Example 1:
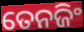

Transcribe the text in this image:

ତେନଜିଂ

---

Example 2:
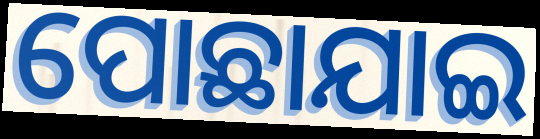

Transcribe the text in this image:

ପୋଛାଯାଇ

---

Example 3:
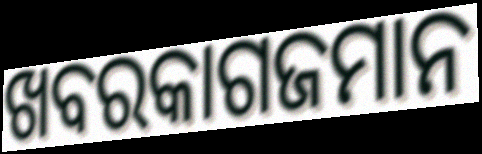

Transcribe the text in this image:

ଖବରକାଗଜମାନ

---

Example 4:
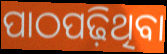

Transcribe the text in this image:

ପାଠପଢ଼ିଥିବା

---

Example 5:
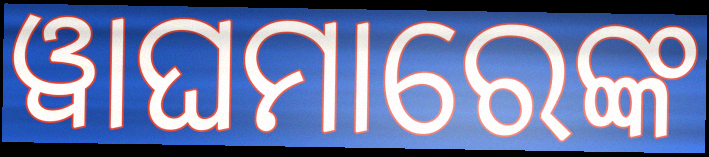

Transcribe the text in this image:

ୱାଘମାରେଙ୍କ